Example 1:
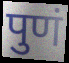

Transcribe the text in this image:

पुणं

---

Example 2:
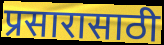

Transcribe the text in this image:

प्रसारासाठी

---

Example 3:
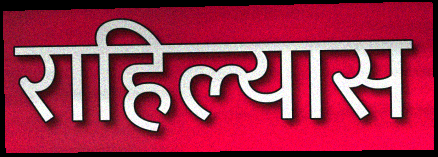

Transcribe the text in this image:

राहिल्यास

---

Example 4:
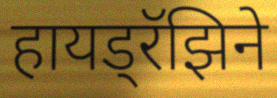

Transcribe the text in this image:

हायड्रॅझिने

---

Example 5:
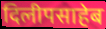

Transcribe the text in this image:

दिलीपसाहेब